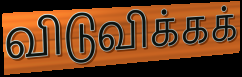
விடுவிக்கக்